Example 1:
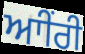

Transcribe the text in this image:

ਆੀਂਰੀ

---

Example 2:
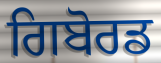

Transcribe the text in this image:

ਗਿਬੋਰਡ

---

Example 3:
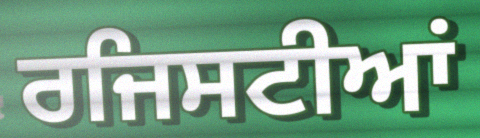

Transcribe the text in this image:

ਰਜਿਸਟੀਆਂ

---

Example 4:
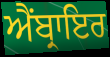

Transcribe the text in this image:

ਐਂਬ੍ਰਾਇਰ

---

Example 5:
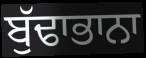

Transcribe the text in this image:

ਬੁੱਢਾਭਾਨਾ